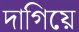
দাগিয়ে